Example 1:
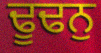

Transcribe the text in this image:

ਢੂਢਨੁ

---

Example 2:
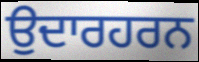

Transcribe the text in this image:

ਉਦਾਰਹਰਨ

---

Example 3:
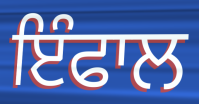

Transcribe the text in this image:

ਇੰਫਾਲ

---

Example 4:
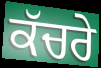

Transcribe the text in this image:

ਕੱਚਰੇ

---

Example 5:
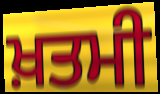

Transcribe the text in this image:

ਖ਼ਤਮੀ